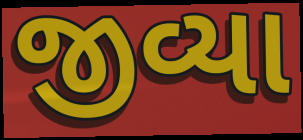
જીવ્યા